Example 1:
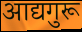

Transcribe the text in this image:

आद्यगुरू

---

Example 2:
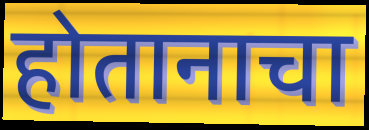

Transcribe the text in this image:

होतानाचा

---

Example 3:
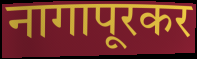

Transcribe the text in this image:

नागापूरकर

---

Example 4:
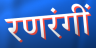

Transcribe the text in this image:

रणरंगीं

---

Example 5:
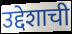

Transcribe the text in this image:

उद्देशाची